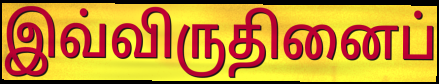
இவ்விருதினைப்